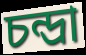
চন্দ্রা